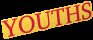
YOUTHS